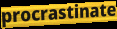
procrastinate